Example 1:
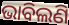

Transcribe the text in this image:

ଭାବିଲଣି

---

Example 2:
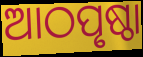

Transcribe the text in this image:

ଆଠପୃଷ୍ଠା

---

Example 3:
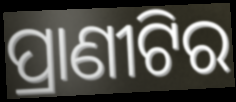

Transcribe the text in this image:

ପ୍ରାଣୀଟିର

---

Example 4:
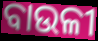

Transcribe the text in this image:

ବାଉଳୀ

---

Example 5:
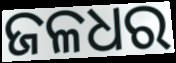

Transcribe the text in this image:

ଜଳଧର